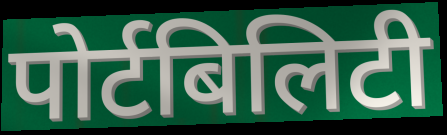
पोर्टबिलिटी